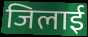
जिलाई